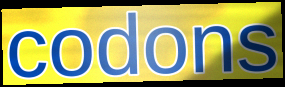
codons